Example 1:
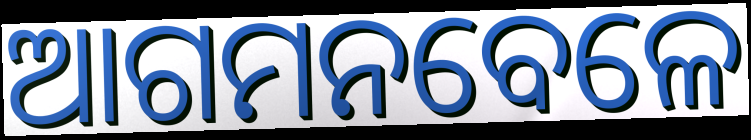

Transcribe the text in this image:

ଆଗମନବେଳେ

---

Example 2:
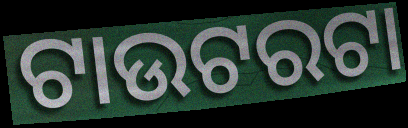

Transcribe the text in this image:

ଟାଉଟରଟା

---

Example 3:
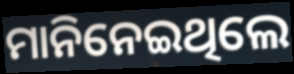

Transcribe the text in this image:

ମାନିନେଇଥିଲେ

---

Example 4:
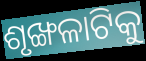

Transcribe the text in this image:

ଶୃଙ୍ଖଳାଟିକୁ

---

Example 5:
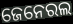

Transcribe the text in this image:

ଜେନେରଲ